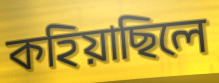
কহিয়াছিলে